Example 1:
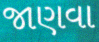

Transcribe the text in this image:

જાણવા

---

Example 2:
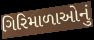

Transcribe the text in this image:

ગિરિમાળાઓનું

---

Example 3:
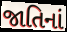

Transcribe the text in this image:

જાતિનાં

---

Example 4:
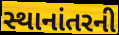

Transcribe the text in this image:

સ્થાનાંતરની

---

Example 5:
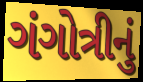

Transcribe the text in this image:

ગંગોત્રીનું